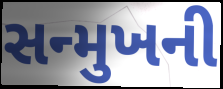
સન્મુખની